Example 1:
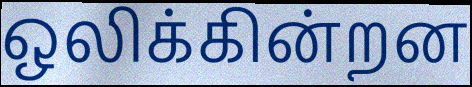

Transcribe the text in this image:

ஒலிக்கின்றன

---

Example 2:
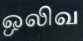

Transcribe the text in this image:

ஒலிவ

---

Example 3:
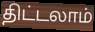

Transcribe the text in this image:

திட்டலாம்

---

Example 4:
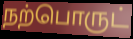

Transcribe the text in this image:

நற்பொருட்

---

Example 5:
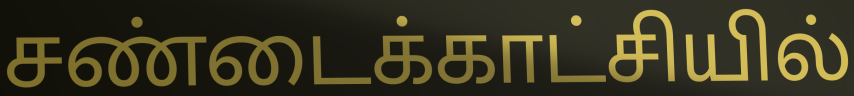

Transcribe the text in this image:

சண்டைக்காட்சியில்